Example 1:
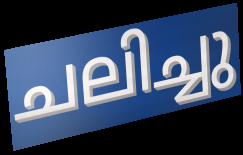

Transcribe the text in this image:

ചലിച്ചു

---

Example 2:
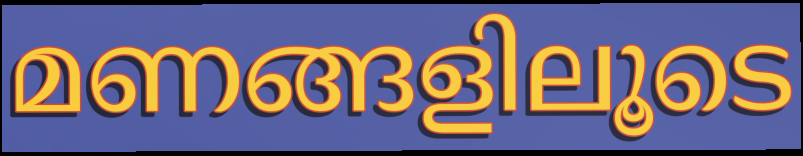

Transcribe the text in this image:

മണങ്ങളിലൂടെ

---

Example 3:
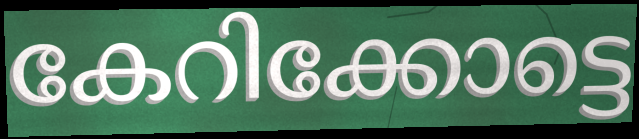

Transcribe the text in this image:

കേറിക്കോട്ടെ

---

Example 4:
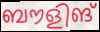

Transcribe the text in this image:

ബൗളിങ്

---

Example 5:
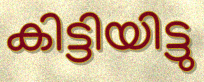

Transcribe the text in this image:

കിട്ടിയിട്ടു